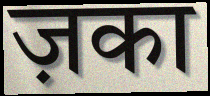
ज़का